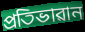
প্ৰতিভাৱান